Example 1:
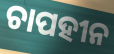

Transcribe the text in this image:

ଚାପହୀନ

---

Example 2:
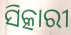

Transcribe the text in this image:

ସିତ୍କାରୀ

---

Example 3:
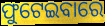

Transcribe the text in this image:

ଫୁଟେଇବାରେ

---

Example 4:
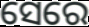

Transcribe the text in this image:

ସେରେ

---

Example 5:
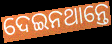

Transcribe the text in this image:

ଦେଇନଥାନ୍ତେ